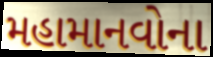
મહામાનવોના